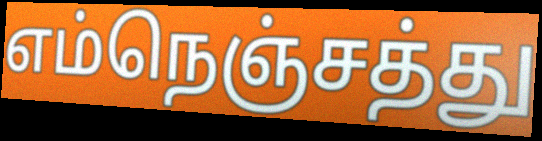
எம்நெஞ்சத்து